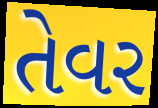
તેવર